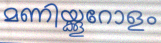
മണിയ്ക്കൂറോളം